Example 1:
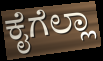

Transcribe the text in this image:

ಕೈಗೆಲ್ಲಾ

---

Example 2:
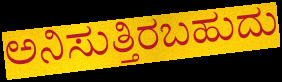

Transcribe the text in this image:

ಅನಿಸುತ್ತಿರಬಹುದು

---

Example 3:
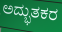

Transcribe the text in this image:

ಅದ್ಭುತಕರ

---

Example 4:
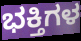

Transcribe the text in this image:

ಭಕ್ತಿಗಳ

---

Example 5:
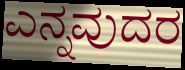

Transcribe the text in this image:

ಎನ್ನವುದರ